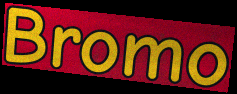
Bromo